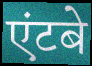
एंटबे